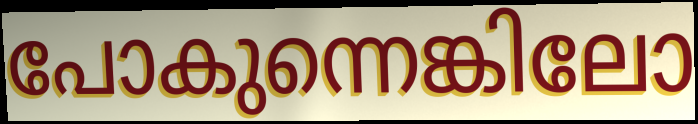
പോകുന്നെങ്കിലോ